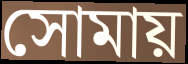
সোমায়